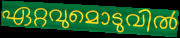
ഏറ്റവുമൊടുവിൽ